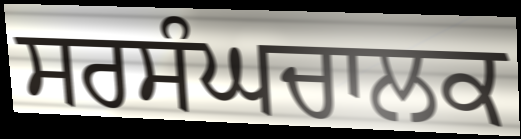
ਸਰਸੰਘਚਾਲਕ